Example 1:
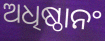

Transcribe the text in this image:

ଅଧିଷ୍ଠାନଂ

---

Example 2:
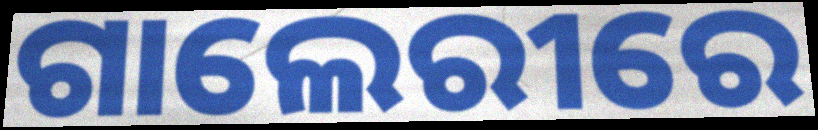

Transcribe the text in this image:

ଗାଲେରୀରେ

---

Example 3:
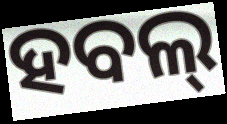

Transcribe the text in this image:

ହବଲ୍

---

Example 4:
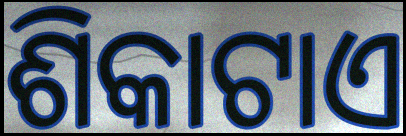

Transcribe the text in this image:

ଶିକାଟାଏ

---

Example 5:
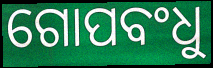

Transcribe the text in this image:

ଗୋପବଂଧୁ